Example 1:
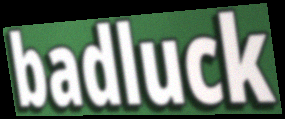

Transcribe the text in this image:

badluck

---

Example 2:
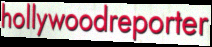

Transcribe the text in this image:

hollywoodreporter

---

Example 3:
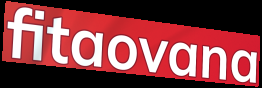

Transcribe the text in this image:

fitaovana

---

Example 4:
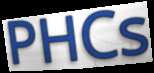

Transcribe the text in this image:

PHCs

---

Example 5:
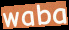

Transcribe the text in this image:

waba